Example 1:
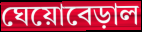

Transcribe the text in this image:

ঘেয়োবেড়াল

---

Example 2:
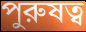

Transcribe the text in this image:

পুরুষত্ব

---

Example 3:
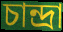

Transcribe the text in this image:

চান্দ্রা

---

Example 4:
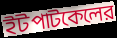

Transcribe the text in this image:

ইটপাটকেলের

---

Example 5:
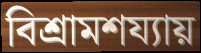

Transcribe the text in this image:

বিশ্রামশয্যায়